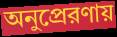
অনুপ্রেরণায়